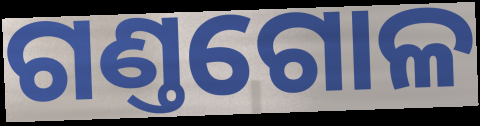
ଗଣ୍ତଗୋଳ